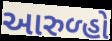
આરુળ્હો